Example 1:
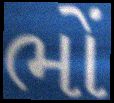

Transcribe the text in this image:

ભોં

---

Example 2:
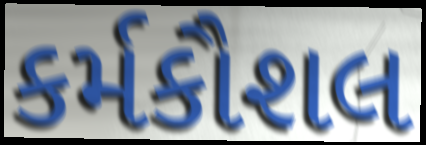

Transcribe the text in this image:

કર્મકૌશલ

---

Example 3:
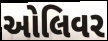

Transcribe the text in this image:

ઓલિવર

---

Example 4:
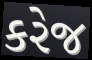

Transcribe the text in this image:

કરેજ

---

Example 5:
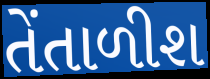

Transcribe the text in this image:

તેંતાળીશ